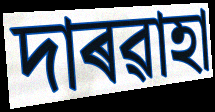
দাৰৱাহা